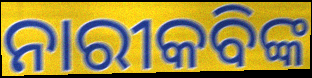
ନାରୀକବିଙ୍କ